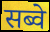
सब्वे